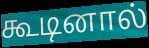
கூடினால்